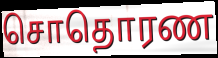
சொதொரண